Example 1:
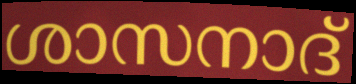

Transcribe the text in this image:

ശാസനാദ്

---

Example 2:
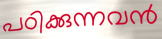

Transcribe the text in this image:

പഠിക്കുന്നവൻ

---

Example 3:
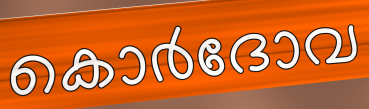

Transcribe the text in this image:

കൊർദോവ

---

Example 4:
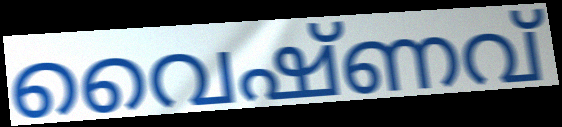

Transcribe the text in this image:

വൈഷ്ണവ്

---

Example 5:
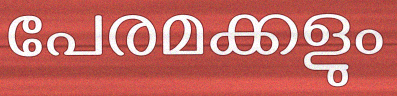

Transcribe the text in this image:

പേരമക്കളും